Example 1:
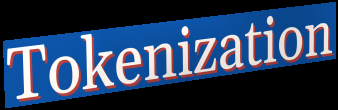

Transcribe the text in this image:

Tokenization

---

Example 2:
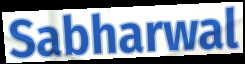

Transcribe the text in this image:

Sabharwal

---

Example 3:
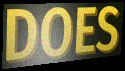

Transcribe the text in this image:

DOES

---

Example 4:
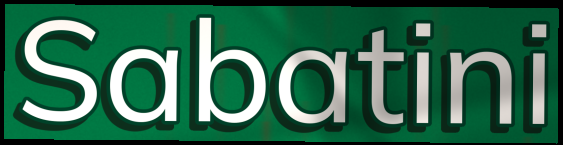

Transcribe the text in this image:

Sabatini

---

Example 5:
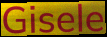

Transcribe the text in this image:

Gisele